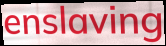
enslaving